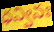
ధన్వినః